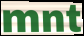
mnt